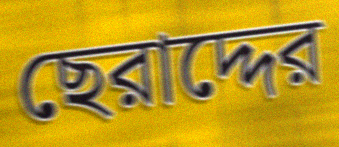
ছেরাদ্দের